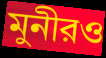
মুনীরও